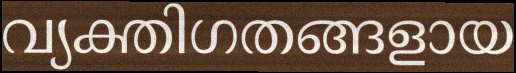
വ്യക്തിഗതങ്ങളായ